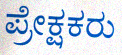
ಪ್ರೇಕ್ಷಕರು